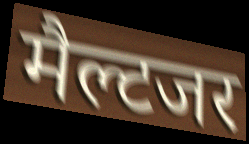
मैल्टजर